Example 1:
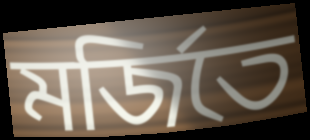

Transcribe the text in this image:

মর্জিতে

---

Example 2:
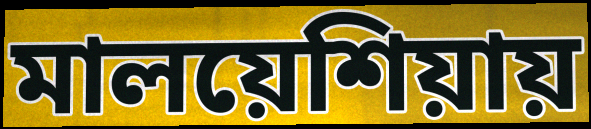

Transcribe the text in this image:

মালয়েশিয়ায়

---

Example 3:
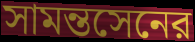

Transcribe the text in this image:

সামন্তসেনের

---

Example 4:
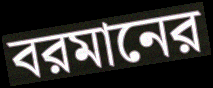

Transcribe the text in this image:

বরমানের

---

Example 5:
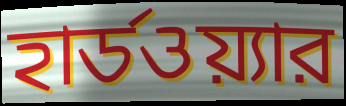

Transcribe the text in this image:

হার্ডওয়্যার